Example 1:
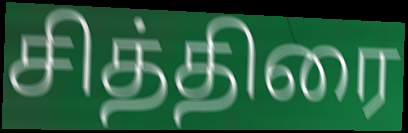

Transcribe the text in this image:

சித்திரை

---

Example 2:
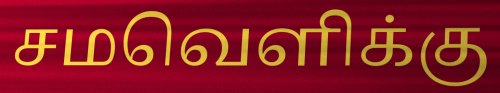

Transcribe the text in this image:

சமவெளிக்கு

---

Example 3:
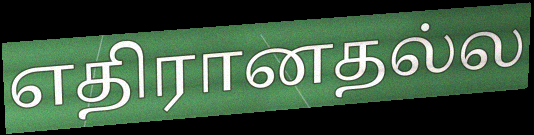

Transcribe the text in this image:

எதிரானதல்ல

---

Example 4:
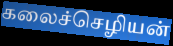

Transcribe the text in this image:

கலைச்செழியன்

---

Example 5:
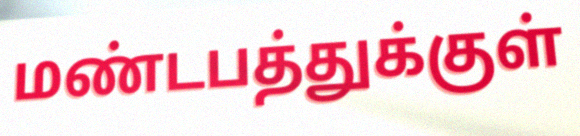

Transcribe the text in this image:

மண்டபத்துக்குள்